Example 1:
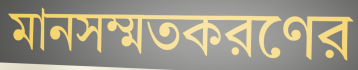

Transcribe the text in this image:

মানসম্মতকরণের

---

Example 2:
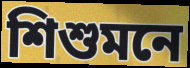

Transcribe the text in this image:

শিশুমনে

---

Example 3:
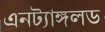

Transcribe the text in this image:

এনট্যাঙ্গলড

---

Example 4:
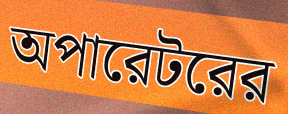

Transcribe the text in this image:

অপারেটরের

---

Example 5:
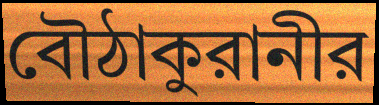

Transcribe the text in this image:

বৌঠাকুরানীর